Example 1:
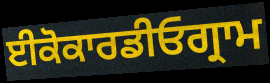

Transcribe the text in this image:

ਈਕੋਕਾਰਡੀਓਗ੍ਰਾਮ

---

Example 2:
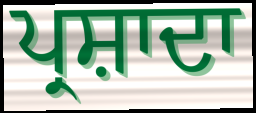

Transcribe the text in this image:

ਪ੍ਰਸ਼ਾਦਾ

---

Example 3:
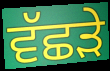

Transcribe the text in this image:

ਵੱਛੜੇ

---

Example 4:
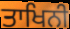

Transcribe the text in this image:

ਤਾਖਿਨੀ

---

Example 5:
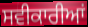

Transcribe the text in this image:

ਸਵੀਕਾਰੀਆਂ